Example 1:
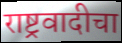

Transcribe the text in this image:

राष्ट्रवादीचा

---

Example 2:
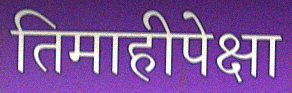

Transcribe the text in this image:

तिमाहीपेक्षा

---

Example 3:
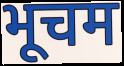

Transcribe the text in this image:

भूचम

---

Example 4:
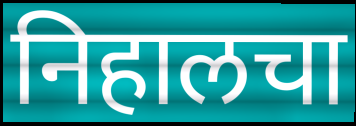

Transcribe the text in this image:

निहालचा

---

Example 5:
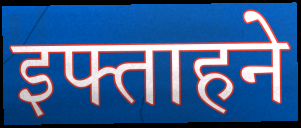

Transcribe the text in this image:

इफ्ताहने